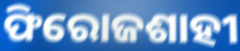
ଫିରୋଜଶାହୀ